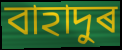
বাহাদুৰ